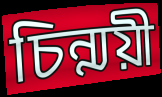
চিন্ময়ী